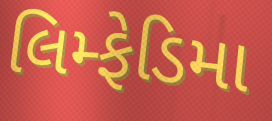
લિમ્ફેડિમા